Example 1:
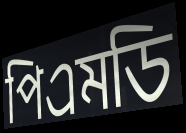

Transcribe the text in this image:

পিএমডি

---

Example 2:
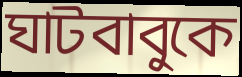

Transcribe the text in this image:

ঘাটবাবুকে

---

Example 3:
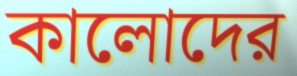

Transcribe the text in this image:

কালোদের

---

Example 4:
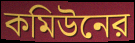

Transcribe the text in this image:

কমিউনের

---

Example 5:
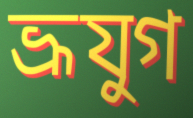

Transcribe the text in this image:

ভ্রূযুগ